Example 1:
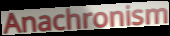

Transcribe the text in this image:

Anachronism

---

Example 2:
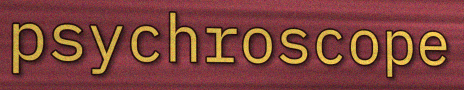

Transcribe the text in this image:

psychroscope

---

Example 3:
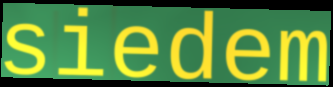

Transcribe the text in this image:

siedem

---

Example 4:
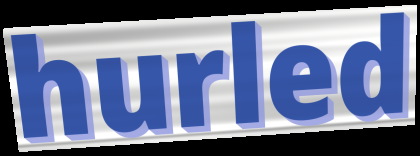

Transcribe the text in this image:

hurled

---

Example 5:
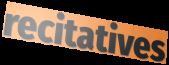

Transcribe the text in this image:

recitatives